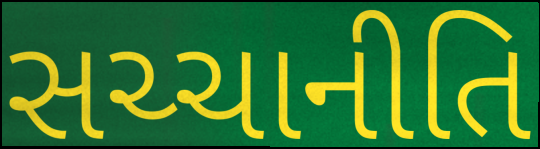
સચ્ચાનીતિ